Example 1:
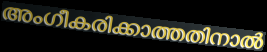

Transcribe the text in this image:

അംഗീകരിക്കാത്തതിനാൽ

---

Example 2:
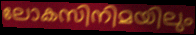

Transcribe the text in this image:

ലോകസിനിമയിലും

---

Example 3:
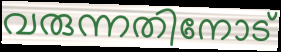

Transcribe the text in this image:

വരുന്നതിനോട്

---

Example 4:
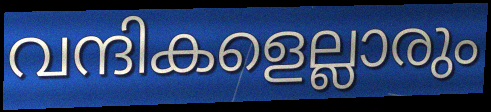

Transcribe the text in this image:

വന്ദികളെല്ലാരും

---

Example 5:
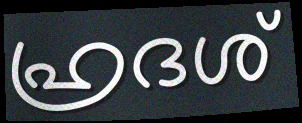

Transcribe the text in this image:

ഹ്രദശ്